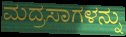
ಮದ್ರಸಾಗಳನ್ನು